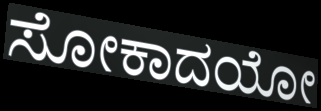
ಸೋಕಾದಯೋ